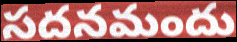
సదనమందు